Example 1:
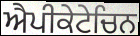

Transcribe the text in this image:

ਐਪੀਕੇਟੇਚਿਨ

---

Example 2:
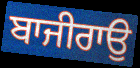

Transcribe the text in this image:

ਬਾਜੀਰਾਉ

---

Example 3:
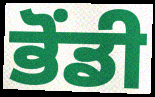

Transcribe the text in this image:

ਭੋਂਡੀ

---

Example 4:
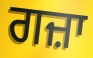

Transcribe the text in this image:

ਗਜ਼ਾ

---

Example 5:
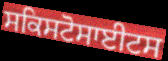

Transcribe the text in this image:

ਸਕਿਸਟੋਸਾਈਟਸ